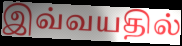
இவ்வயதில்